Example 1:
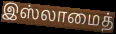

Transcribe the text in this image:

இஸ்லாமைத்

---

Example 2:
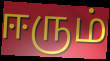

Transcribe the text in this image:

ஈரும்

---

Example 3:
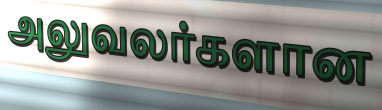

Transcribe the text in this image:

அலுவலர்களான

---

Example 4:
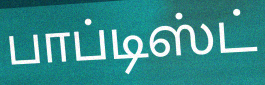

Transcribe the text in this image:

பாப்டிஸ்ட்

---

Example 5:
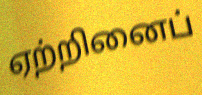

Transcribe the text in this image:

ஏற்றினைப்